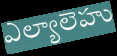
ఎల్యాలెహు